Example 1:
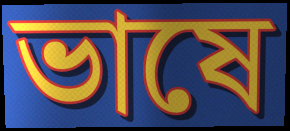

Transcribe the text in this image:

ভাষে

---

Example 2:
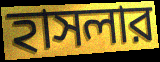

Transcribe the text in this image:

হাসলার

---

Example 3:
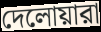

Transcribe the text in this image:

দেলোয়ারা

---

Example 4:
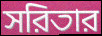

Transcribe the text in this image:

সরিতার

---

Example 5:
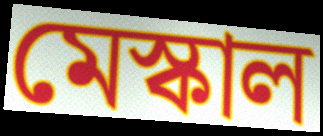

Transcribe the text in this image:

মেস্কাল